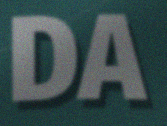
DA